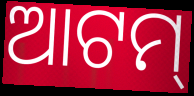
ଆଟମ୍